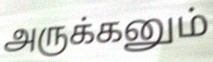
அருக்கனும்